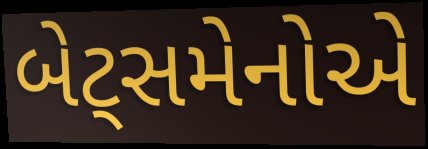
બેટ્સમેનોએ